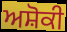
ਅਸ਼ੋਕੀ